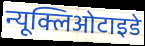
न्यूक्लिओटाइडे